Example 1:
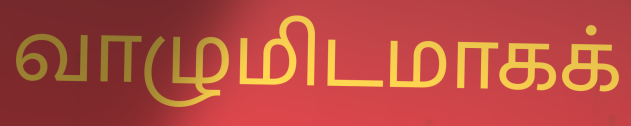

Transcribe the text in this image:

வாழுமிடமாகக்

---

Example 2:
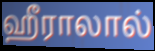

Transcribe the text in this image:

ஹீராலால்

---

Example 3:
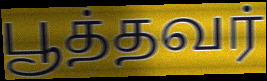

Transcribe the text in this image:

பூத்தவர்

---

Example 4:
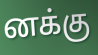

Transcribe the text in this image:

னக்கு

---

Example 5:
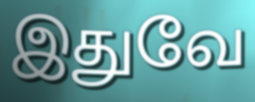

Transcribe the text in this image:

இதுவே